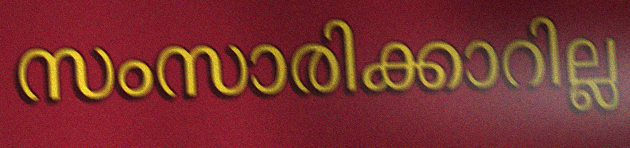
സംസാരിക്കാറില്ല